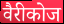
वैरीकोज